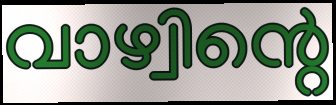
വാഴ്വിന്റെ